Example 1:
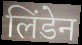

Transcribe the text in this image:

लिंडेन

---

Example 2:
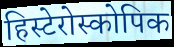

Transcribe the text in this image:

हिस्टेरोस्कोपिक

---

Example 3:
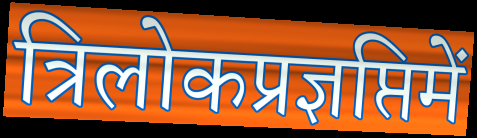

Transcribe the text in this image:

त्रिलोकप्रज्ञप्तिमें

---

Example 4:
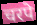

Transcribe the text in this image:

चरपे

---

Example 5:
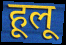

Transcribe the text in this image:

हूलू